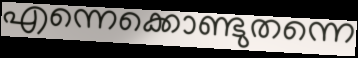
എന്നെക്കൊണ്ടുതന്നെ